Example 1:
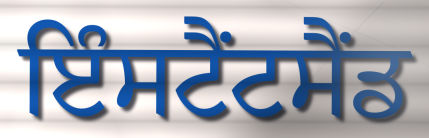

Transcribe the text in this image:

ਇੰਸਟੈਂਟਸੈਂਡ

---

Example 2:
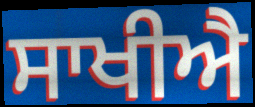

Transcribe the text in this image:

ਸਾਖੀਐ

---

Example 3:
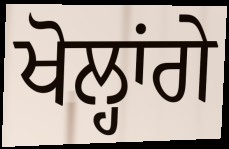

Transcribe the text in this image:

ਖੋਲ੍ਹਾਂਗੇ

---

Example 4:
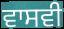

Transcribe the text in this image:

ਵਾਸਵੀ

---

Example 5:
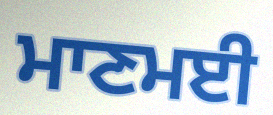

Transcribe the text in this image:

ਮਾਣਮਈ